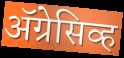
ॲग्रेसिव्ह